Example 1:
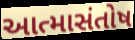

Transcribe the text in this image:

આત્માસંતોષ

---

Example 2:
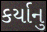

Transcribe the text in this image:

કર્યાનુ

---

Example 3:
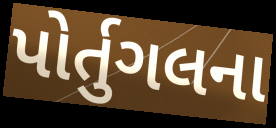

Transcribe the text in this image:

પોર્તુગલના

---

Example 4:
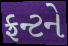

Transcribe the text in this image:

ફ્રન્ટને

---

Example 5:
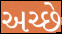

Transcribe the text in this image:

અચ્છે